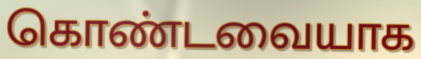
கொண்டவையாக